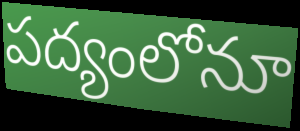
పద్యంలోనూ